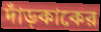
দাঁড়কাকের